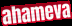
ahameva